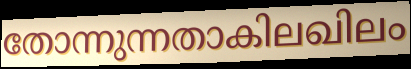
തോന്നുന്നതാകിലഖിലം